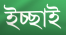
ইচ্ছাই